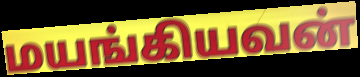
மயங்கியவன்